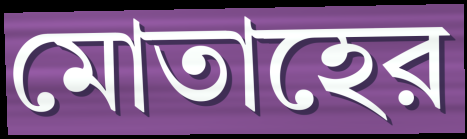
মোতাহের